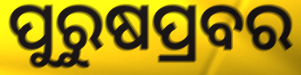
ପୁରୁଷପ୍ରବର